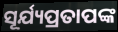
ସୂର୍ଯ୍ୟପ୍ରତାପଙ୍କ